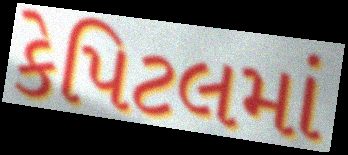
કેપિટલમાં